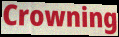
Crowning